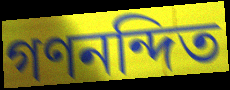
গণনন্দিত